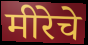
मीरेचे